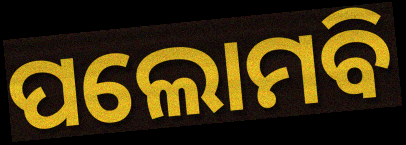
ପଲୋମବି